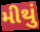
મીથું